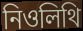
নিওলিথি